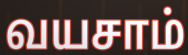
வயசாம்